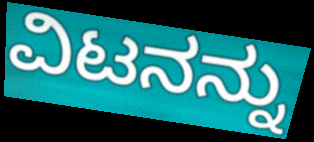
ವಿಟನನ್ನು